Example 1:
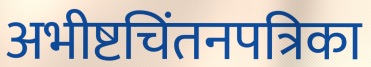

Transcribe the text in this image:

अभीष्टचिंतनपत्रिका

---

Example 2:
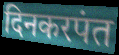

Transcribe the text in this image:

दिनकरपंत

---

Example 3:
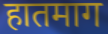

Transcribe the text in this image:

हातमाग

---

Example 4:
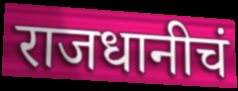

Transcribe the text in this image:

राजधानीचं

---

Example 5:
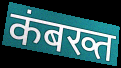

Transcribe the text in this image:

कंबख्त